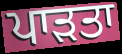
ਪਾੜਤਾ